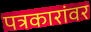
पत्रकारांवर